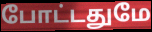
போட்டதுமே